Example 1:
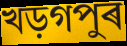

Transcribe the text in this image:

খড়গপুৰ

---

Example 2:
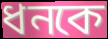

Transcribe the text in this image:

ধনকে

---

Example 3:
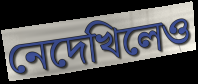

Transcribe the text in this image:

নেদেখিলেও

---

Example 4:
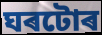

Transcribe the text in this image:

ঘৰটোৰ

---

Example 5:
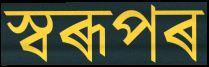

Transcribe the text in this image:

স্বৰূপৰ